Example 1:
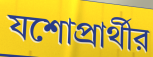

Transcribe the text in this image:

যশোপ্রার্থীর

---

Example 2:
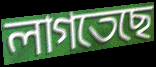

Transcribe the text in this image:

লাগতেছে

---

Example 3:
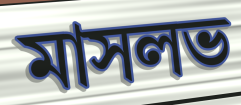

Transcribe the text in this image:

মাসলভ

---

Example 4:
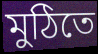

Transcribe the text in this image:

মুঠিতে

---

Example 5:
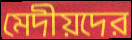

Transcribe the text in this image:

মেদীয়দের